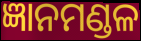
ଜ୍ଞାନମଣ୍ଡଳ